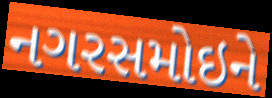
નગરસમોઇને